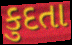
કુદતા